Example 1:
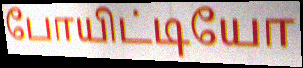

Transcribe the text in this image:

போயிட்டியோ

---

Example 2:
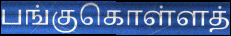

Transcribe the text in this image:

பங்குகொள்ளத்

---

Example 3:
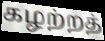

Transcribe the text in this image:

கழற்றத்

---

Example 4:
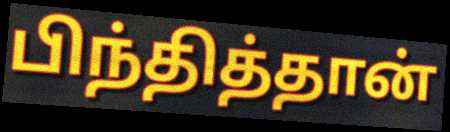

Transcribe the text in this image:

பிந்தித்தான்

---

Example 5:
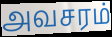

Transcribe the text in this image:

அவசரம்